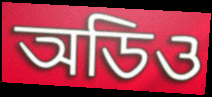
অডিও